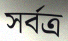
সৰ্বত্ৰ